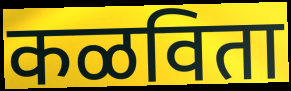
कळविता